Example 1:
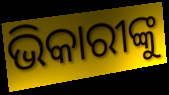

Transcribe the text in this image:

ଭିକାରୀଙ୍କୁ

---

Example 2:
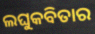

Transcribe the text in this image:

ଲଘୁକବିତାର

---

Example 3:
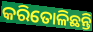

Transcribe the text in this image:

କରିତୋଳିଛନ୍ତି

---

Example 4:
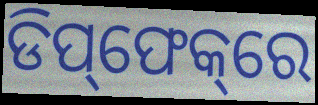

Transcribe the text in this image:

ଡିପ୍‌ଫେକ୍‌ରେ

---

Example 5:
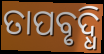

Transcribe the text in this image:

ତାପବୃଦ୍ଧି